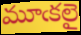
మూఁకలై